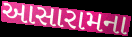
આસારામના